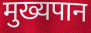
मुख्यपान